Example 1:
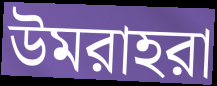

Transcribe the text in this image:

উমরাহরা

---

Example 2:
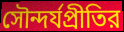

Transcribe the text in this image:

সৌন্দর্যপ্রীতির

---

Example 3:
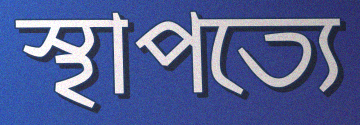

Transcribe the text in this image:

স্থাপত্যে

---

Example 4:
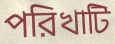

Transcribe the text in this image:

পরিখাটি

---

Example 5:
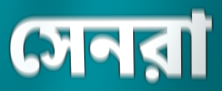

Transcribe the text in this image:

সেনরা